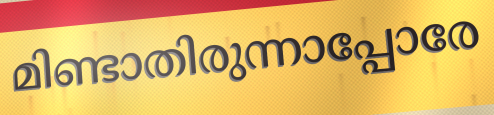
മിണ്ടാതിരുന്നാപ്പോരേ